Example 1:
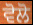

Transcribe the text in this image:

ਵੋਲੋ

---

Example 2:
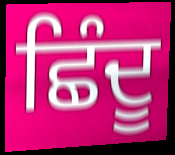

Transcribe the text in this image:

ਛਿੰਦੂ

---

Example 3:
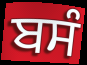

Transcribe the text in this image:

ਬਸੰ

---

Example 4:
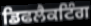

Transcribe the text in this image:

ਡਿਫਲੈਕਟਿੰਗ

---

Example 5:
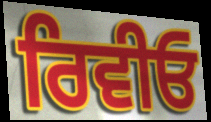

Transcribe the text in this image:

ਰਿਵੀਓ